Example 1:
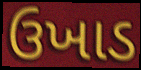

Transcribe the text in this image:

ઉખાડ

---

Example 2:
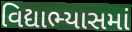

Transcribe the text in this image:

વિદ્યાભ્યાસમાં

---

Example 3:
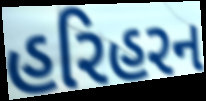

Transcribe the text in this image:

હરિહરન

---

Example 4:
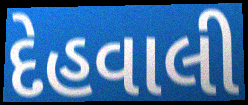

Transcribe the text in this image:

દેહવાલી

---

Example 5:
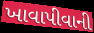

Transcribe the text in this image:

ખાવાપીવાની